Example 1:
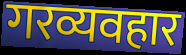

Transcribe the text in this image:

गरव्यवहार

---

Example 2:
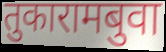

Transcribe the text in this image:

तुकारामबुवा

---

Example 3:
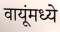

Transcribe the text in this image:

वायूंमध्ये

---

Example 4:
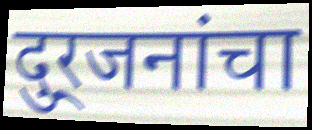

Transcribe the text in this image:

दुर्जनांचा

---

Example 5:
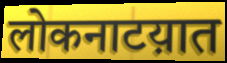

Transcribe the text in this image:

लोकनाटय़ात